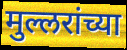
मुल्लरांच्या